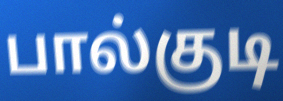
பால்குடி